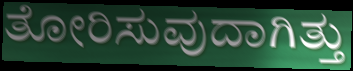
ತೋರಿಸುವುದಾಗಿತ್ತು